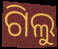
ଗିଲୁ